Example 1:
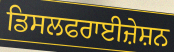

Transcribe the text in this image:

ਡਿਸਲਫਰਾਈਜ਼ੇਸ਼ਨ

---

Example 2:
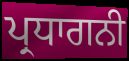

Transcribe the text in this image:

ਪ੍ਰਧਾਗਨੀ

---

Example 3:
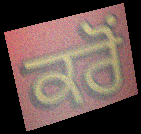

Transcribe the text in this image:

ਕਰੋਂ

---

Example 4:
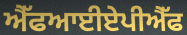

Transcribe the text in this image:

ਐੱਫਆਈਏਪੀਐੱਫ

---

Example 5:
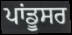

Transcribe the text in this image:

ਪਾਂਡੂਸਰ